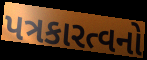
પત્રકારત્વનો